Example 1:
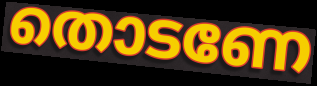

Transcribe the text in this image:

തൊടണേ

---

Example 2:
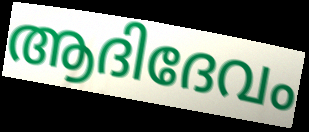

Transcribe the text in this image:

ആദിദേവം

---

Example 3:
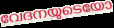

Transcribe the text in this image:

വേദനയുടെയോ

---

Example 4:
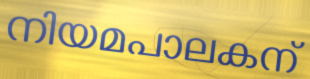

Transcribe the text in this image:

നിയമപാലകന്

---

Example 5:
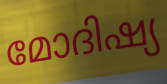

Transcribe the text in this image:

മോദിഷ്യ